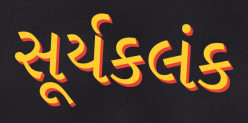
સૂર્યકલંક